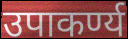
उपाकर्ण्य